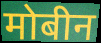
मोबीन